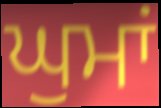
ਘੁਮਾਂ